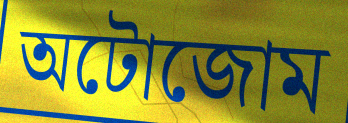
অটোজোম